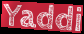
Yaddi